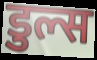
डुल्स